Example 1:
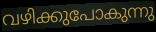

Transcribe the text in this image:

വഴിക്കുപോകുന്നു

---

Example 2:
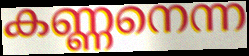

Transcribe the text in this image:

കണ്ണനെന്ന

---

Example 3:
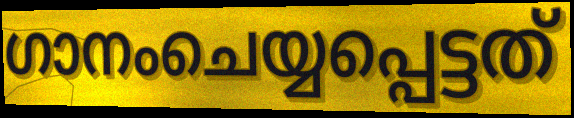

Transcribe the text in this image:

ഗാനംചെയ്യപ്പെട്ടത്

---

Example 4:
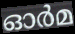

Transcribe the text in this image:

ഓർമ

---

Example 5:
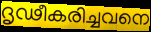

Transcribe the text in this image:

ദൃഢീകരിച്ചവനെ